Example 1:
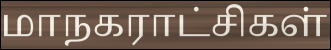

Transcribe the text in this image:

மாநகராட்சிகள்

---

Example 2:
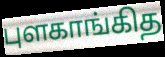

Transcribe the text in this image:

புளகாங்கித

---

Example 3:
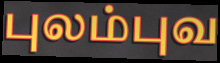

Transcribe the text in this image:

புலம்புவ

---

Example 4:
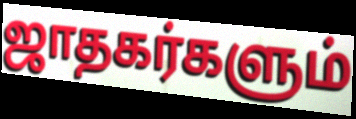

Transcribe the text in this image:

ஜாதகர்களும்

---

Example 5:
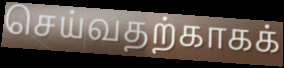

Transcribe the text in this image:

செய்வதற்காகக்